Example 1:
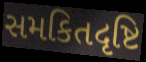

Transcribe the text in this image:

સમકિતદૃષ્ટિ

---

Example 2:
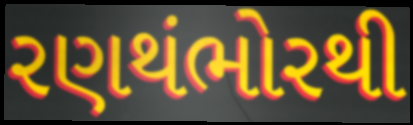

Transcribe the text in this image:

રણથંભોરથી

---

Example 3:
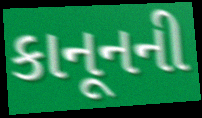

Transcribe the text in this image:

કાનૂનની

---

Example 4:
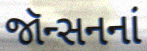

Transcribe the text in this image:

જૉન્સનનાં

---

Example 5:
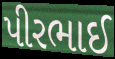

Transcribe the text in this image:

પીરભાઈ